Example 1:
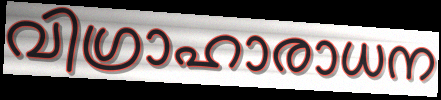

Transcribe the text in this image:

വിഗ്രാഹാരാധന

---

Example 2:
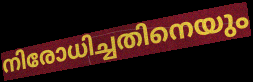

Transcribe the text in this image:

നിരോധിച്ചതിനെയും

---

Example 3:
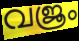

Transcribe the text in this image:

വജ്രം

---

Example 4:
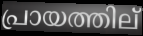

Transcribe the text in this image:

പ്രായത്തില്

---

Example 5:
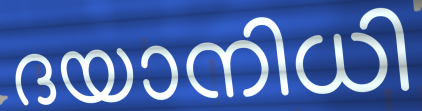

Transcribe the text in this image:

ദയാനിധി